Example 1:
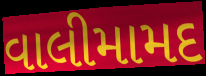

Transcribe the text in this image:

વાલીમામદ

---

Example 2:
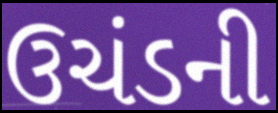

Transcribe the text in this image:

ઉચંડની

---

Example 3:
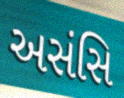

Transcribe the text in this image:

અસંસિ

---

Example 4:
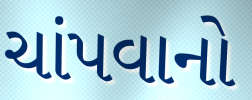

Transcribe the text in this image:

ચાંપવાનો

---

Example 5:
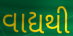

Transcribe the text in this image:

વાદ્યથી